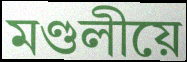
মণ্ডলীয়ে